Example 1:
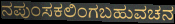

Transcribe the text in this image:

ನಪುಂಸಕಲಿಂಗಬಹುವಚನ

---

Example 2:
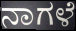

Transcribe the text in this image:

ನಾಗಳೆ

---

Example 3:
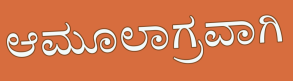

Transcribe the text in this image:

ಆಮೂಲಾಗ್ರವಾಗಿ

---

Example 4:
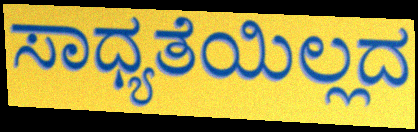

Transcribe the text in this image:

ಸಾಧ್ಯತೆಯಿಲ್ಲದ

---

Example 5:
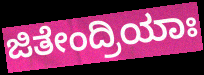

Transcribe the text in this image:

ಜಿತೇಂದ್ರಿಯಾಃ